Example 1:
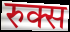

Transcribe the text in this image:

रुक्स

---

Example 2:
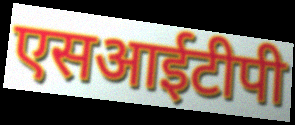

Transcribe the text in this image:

एसआईटीपी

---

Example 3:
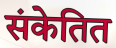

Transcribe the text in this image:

संकेतित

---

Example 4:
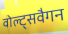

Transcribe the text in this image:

वोल्ट्सवैगन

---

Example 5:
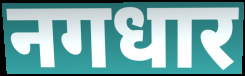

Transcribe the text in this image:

नगधार